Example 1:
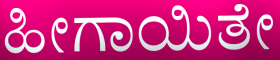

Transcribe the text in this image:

ಹೀಗಾಯಿತೇ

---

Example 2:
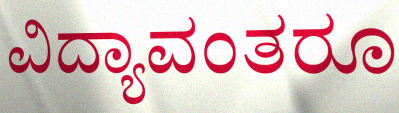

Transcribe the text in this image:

ವಿದ್ಯಾವಂತರೂ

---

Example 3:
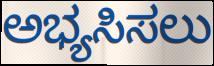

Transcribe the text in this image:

ಅಭ್ಯಸಿಸಲು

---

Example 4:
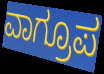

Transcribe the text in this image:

ವಾಗ್ರೂಪ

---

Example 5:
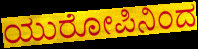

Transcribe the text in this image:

ಯುರೋಪಿನಿಂದ